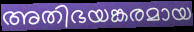
അതിഭയങ്കരമായ